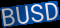
BUSD